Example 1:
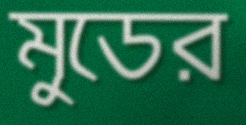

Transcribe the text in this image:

মুডের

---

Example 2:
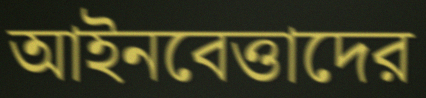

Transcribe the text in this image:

আইনবেত্তাদের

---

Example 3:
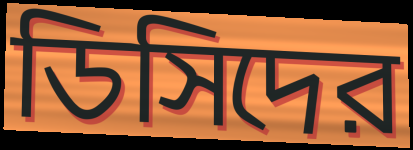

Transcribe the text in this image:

ডিসিদের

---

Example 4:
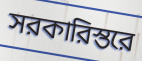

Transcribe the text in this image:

সরকারিস্তরে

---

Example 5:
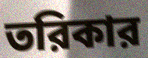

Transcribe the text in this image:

তরিকার